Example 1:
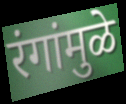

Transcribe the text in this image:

रंगांमुळे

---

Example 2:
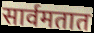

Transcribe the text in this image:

सार्वमतात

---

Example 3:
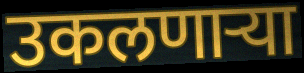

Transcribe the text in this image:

उकलणाऱ्या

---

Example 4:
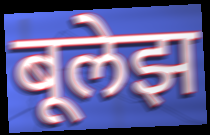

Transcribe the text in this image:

बूलेझ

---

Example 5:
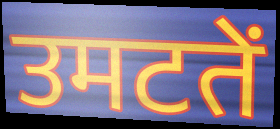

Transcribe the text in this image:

उमटतें